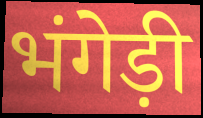
भंगेड़ी